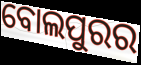
ବୋଲପୁରର